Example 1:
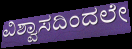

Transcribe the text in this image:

ವಿಶ್ವಾಸದಿಂದಲೇ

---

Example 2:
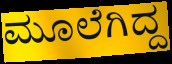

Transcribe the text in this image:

ಮೂಲೆಗಿದ್ದ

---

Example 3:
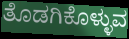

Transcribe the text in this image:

ತೊಡಗಿಕೊಳ್ಳುವ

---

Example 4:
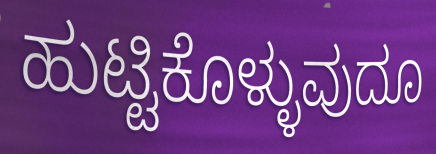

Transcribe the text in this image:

ಹುಟ್ಟಿಕೊಳ್ಳುವುದೂ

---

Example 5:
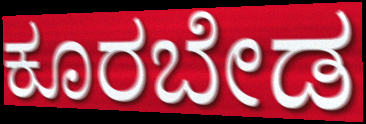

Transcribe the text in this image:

ಕೂರಬೇಡ